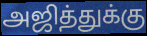
அஜித்துக்கு